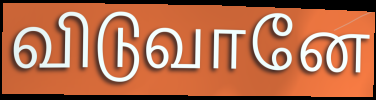
விடுவானே